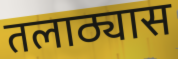
तलाठ्यास